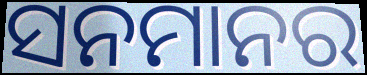
ସନମାନର